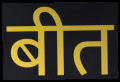
बीत